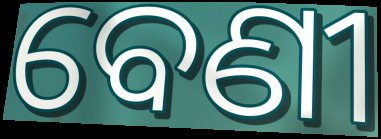
ବେଣୀ